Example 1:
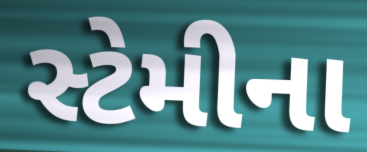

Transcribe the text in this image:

સ્ટેમીના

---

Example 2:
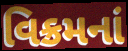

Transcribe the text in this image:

વિક્રમનાં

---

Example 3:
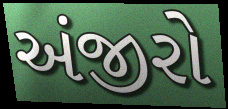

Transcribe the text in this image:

અંજીરો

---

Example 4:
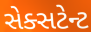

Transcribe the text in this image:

સેક્સટેન્ટ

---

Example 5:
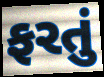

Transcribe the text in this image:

ફરતું